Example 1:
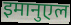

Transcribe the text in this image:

इमानुएल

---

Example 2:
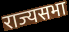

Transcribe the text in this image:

राज्यसभा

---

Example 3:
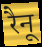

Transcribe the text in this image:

रैनू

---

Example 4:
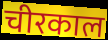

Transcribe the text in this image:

चीरकाल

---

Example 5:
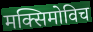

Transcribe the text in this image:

मक्सिमोविच